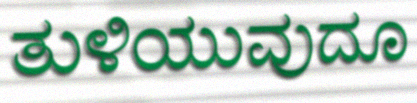
ತುಳಿಯುವುದೂ